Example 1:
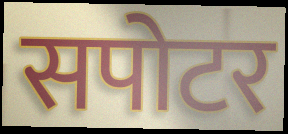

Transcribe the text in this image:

सपोटर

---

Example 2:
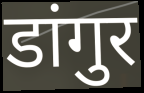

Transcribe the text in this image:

डांगुर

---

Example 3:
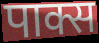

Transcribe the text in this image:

पाक्स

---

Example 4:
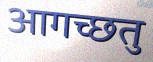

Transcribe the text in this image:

आगच्छतु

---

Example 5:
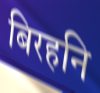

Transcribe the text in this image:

बिरहनि